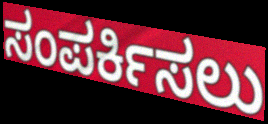
ಸಂಪರ್ಕಿಸಲು